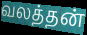
வலத்தன்